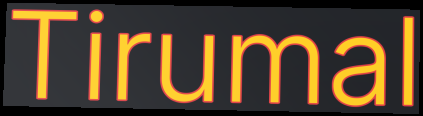
Tirumal